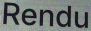
Rendu